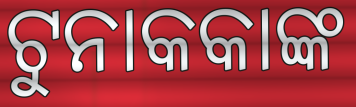
ଟୁନାକକାଙ୍କ